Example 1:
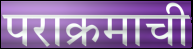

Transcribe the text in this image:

पराक्रमाची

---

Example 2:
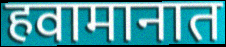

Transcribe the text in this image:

हवामानात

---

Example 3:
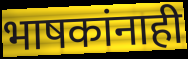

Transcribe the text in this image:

भाषकांनाही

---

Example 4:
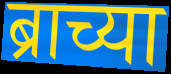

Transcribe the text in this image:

ब्राच्या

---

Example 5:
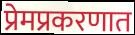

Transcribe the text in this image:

प्रेमप्रकरणात